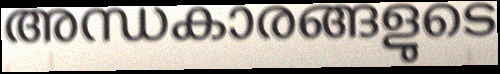
അന്ധകാരങ്ങളുടെ